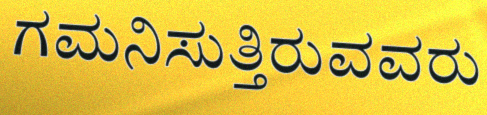
ಗಮನಿಸುತ್ತಿರುವವರು